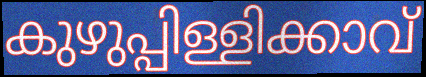
കുഴുപ്പിള്ളിക്കാവ്